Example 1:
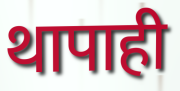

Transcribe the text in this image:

थापाही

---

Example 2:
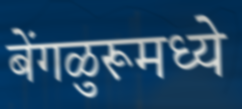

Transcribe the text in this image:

बेंगळुरूमध्ये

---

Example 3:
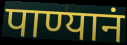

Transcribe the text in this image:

पाण्यानं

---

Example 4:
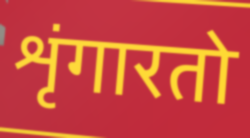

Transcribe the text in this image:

शृंगारतो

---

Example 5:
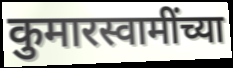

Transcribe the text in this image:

कुमारस्वामींच्या